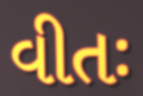
વીતઃ